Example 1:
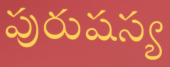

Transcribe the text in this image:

పురుషస్య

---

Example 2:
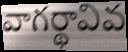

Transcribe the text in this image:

వాగర్థావివ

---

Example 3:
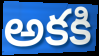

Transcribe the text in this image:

అకకి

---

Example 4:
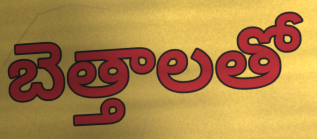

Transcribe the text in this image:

బెత్తాలతో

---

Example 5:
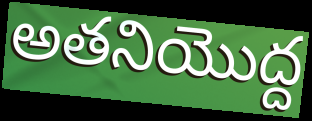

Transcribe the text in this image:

అతనియొద్ద